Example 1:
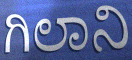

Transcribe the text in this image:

ಗಿಲಾನಿ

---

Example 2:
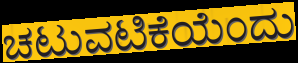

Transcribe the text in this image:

ಚಟುವಟಿಕೆಯೆಂದು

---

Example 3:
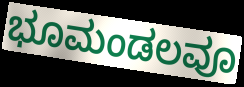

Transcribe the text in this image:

ಭೂಮಂಡಲವೂ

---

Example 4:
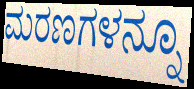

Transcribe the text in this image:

ಮರಣಗಳನ್ನೂ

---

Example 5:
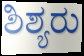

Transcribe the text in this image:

ಶಿಶ್ಯರು